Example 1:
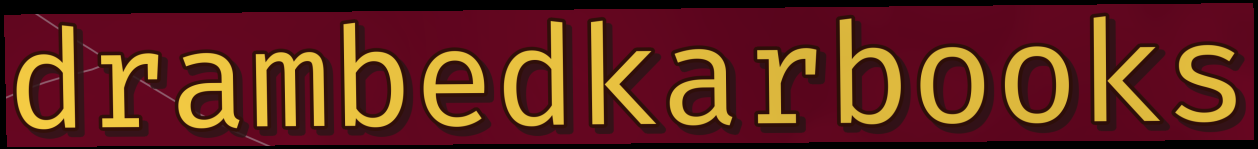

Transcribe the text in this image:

drambedkarbooks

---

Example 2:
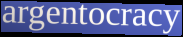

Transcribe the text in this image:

argentocracy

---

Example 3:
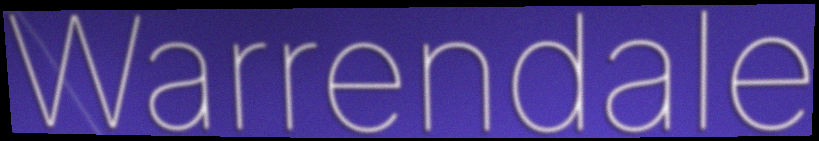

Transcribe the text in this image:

Warrendale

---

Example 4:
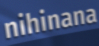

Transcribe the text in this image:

nihinana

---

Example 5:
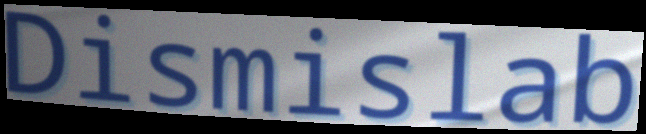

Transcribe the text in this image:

Dismislab